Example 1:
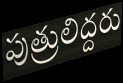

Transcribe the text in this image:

పుత్రులిద్దరు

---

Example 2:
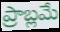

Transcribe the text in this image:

ప్రాబ్లమే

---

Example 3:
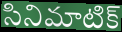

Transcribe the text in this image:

సినిమాటిక్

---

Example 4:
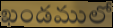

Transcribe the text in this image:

ఖండములో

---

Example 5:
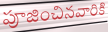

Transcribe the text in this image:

పూజించినవారికి